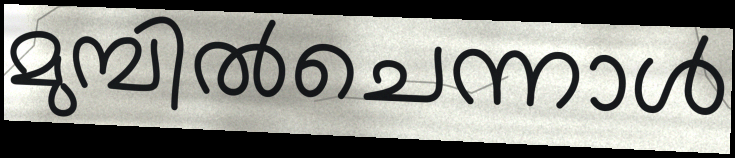
മുമ്പിൽചെന്നാൾ